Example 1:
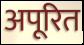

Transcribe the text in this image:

अपूरित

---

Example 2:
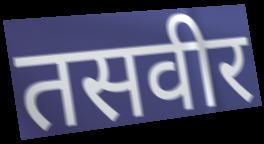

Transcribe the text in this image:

तसवीर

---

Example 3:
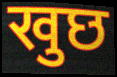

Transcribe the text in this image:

खुछ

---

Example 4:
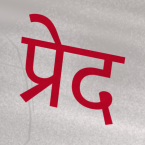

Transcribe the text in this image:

प्रेद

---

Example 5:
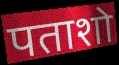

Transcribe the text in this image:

पताशो